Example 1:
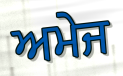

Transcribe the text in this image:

ਅਮੇਜ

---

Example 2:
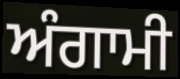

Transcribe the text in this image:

ਅੰਗਾਮੀ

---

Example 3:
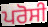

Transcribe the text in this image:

ਪਰੋਸੀ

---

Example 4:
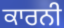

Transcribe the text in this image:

ਕਾਰਨੀ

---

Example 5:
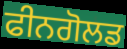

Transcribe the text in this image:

ਫੀਨਗੋਲਡ